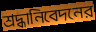
শ্রদ্ধানিবেদনের